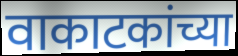
वाकाटकांच्या